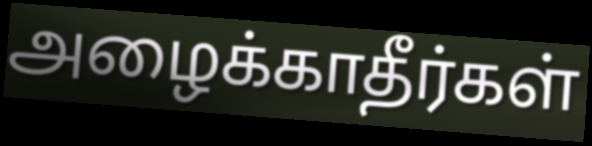
அழைக்காதீர்கள்